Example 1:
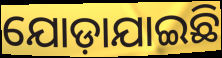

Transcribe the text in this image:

ଯୋଡ଼ାଯାଇଛି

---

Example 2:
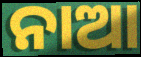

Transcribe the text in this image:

ନାଆ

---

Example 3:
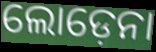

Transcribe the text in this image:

ଲୋଡ଼େନା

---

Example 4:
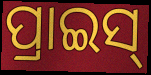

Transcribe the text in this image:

ପ୍ରାଇସ୍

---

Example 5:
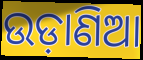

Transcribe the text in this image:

ଉଡ଼ାଣିଆ